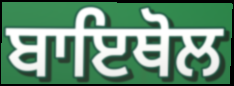
ਬਾਇਥੋਲ